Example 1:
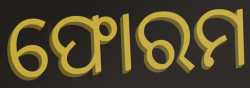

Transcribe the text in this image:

ଫୋରମ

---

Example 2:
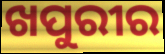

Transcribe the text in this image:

ଖପୁରୀର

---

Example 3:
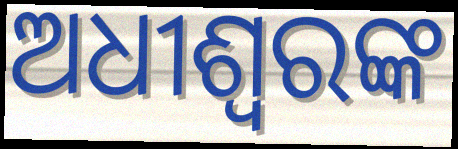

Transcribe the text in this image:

ଅଧୀଶ୍ୱରଙ୍କ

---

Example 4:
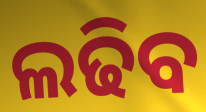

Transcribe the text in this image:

ଲଢିବ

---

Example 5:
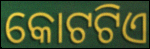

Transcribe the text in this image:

କୋଟଟିଏ